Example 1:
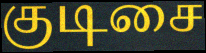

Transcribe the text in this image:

குடிசை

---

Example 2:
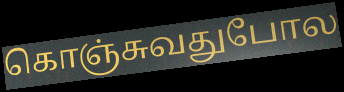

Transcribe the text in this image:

கொஞ்சுவதுபோல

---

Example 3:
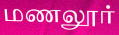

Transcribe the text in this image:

மணலூர்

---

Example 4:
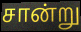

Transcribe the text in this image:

சான்று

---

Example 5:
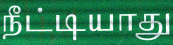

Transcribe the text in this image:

நீட்டியாது